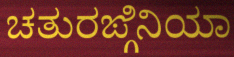
ಚತುರಙ್ಗಿನಿಯಾ